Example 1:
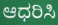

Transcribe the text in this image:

ಆಧರಿಸಿ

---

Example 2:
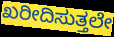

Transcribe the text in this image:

ಖರೀದಿಸುತ್ತಲೇ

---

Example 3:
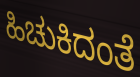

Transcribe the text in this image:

ಹಿಚುಕಿದಂತೆ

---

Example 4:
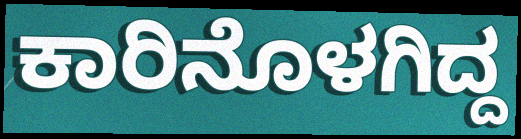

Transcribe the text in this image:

ಕಾರಿನೊಳಗಿದ್ದ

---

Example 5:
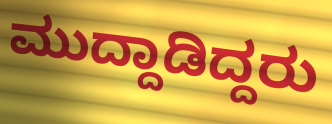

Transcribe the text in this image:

ಮುದ್ದಾಡಿದ್ದರು